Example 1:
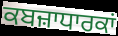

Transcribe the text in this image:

ਕਬਜ਼ਾਧਾਰਕਾਂ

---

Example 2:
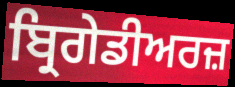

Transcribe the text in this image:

ਬ੍ਰਿਗੇਡੀਅਰਜ਼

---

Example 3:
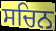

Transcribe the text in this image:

ਸਚਿਨ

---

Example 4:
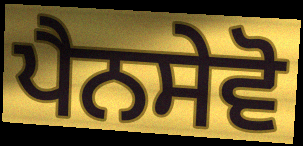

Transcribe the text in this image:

ਪੈਨਸੇਵੋ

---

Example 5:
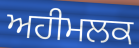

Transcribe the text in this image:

ਅਹੀਮਲਕ